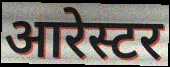
आरेस्टर